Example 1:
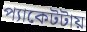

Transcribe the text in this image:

প্যাকেটটায়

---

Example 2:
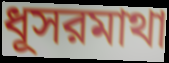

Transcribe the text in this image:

ধূসরমাথা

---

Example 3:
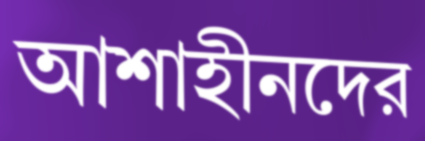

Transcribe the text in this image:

আশাহীনদের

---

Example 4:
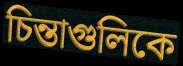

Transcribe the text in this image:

চিন্তাগুলিকে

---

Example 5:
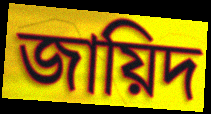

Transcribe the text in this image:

জায়িদ